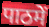
पाठमें